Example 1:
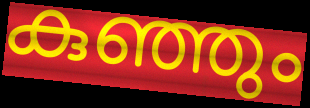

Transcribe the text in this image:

കുഞ്ഞും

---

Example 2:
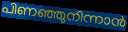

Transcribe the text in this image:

പിണഞ്ഞുനിന്നാൻ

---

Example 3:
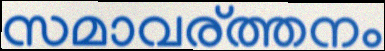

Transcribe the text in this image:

സമാവര്ത്തനം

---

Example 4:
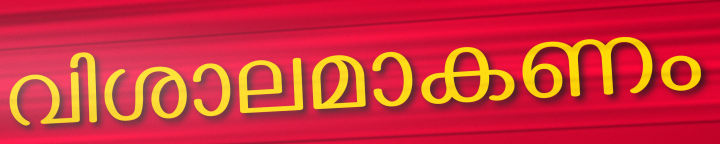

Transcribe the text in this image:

വിശാലമാകണം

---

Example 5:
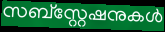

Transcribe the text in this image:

സബ്സ്റ്റേഷനുകൾ